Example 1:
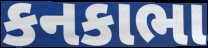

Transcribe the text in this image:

કનકાભા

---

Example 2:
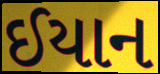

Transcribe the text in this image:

ઈયાન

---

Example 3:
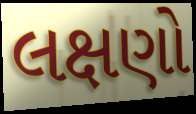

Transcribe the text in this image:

લક્ષણો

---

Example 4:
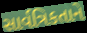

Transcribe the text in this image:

સાર્વત્રિકતાને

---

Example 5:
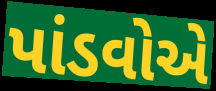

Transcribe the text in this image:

પાંડવોએ